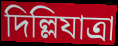
দিল্লিযাত্রা